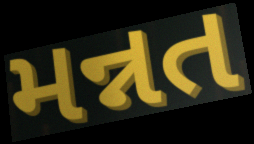
મન્નત